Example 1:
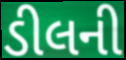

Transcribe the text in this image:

ડીલની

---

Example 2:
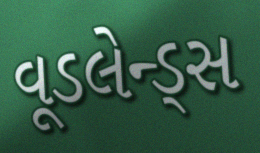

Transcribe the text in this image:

વૂડલેન્ડ્સ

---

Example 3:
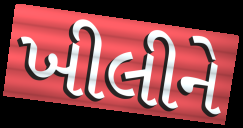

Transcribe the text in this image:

ખીલીને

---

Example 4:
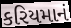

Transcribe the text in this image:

કરિયમાનં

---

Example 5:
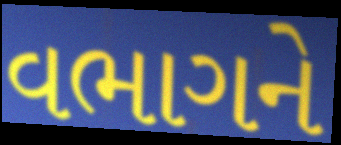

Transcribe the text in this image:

વભાગને